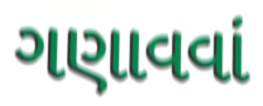
ગણાવવાં